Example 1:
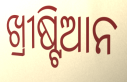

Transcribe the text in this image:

ଖ୍ରୀଷ୍ଟିଆନ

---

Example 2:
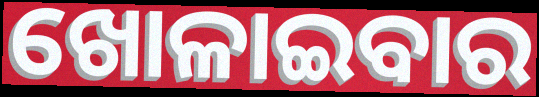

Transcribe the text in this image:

ଖୋଳାଇବାର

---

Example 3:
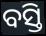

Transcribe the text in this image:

ବସ୍ତି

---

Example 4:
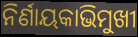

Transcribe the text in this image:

ନିର୍ଣାୟକାଭିମୁଖୀ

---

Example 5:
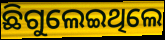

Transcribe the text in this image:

ଛିଗୁଲେଇଥିଲେ